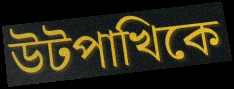
উটপাখিকে